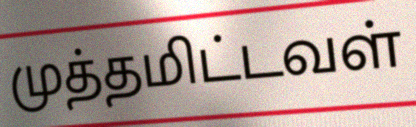
முத்தமிட்டவள்